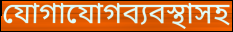
যোগাযোগব্যবস্থাসহ